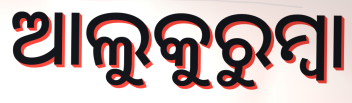
ଆଲୁକୁରୁମ୍ବା